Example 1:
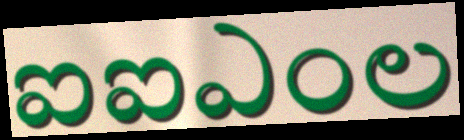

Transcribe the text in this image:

ఐఐఎంల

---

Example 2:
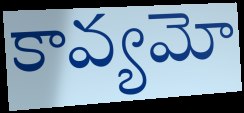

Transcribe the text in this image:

కావ్యమో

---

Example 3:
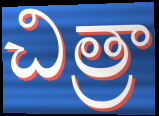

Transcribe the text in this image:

చిత్రా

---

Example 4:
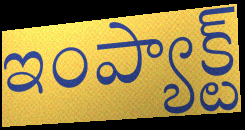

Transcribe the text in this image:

ఇంప్యాక్ట్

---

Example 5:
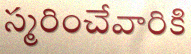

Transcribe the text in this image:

స్మరించేవారికి